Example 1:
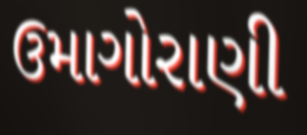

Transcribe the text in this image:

ઉમાગોરાણી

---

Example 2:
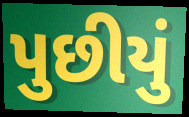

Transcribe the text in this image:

પુછીયું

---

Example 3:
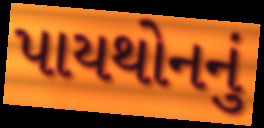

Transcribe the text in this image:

પાયથોનનું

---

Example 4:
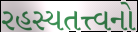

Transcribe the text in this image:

રહસ્યતત્ત્વનો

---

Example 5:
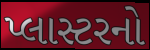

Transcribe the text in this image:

પ્લાસ્ટરનો